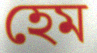
হেম